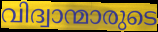
വിദ്വാന്മാരുടെ